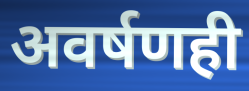
अवर्षणही